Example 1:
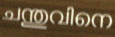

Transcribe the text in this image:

ചന്തുവിനെ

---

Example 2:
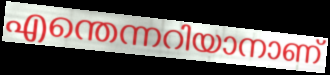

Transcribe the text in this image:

എന്തെന്നറിയാനാണ്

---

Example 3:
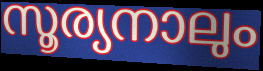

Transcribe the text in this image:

സൂര്യനാലും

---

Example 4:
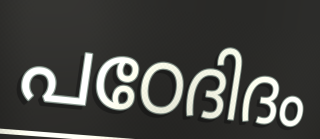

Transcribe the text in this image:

പഠേദിദം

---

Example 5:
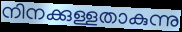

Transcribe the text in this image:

നിനക്കുള്ളതാകുന്നു